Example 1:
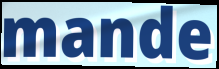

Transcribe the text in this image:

mande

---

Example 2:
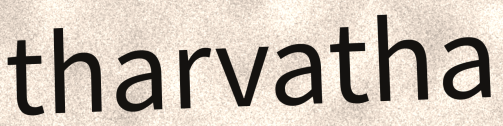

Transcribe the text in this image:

tharvatha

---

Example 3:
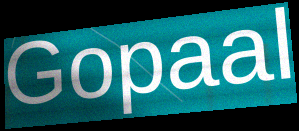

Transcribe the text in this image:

Gopaal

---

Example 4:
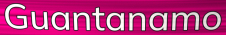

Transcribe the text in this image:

Guantanamo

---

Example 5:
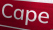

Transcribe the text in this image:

Cape